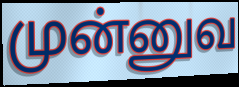
முன்னுவ